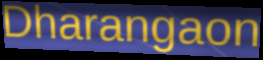
Dharangaon